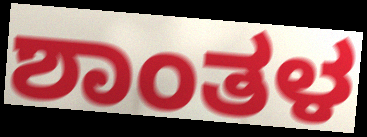
ಶಾಂತಳ